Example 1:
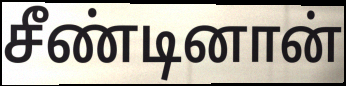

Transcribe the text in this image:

சீண்டினான்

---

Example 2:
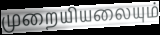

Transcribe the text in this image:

முறையியலையும்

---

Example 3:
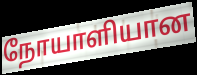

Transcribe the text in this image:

நோயாளியான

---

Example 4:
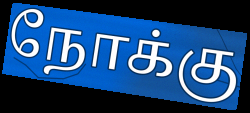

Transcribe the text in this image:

நோக்கு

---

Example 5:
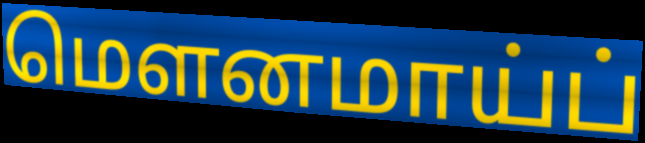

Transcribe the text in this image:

மௌனமாய்ப்